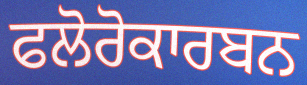
ਫਲੋਰੋਕਾਰਬਨ